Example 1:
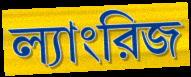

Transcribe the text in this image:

ল্যাংরিজ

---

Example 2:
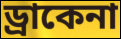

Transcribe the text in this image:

ড্রাকেনা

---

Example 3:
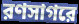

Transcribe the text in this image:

রণসাগরে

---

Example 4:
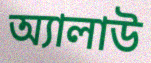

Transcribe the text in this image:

অ্যালাউ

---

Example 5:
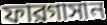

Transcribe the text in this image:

ফারগাসান